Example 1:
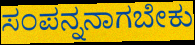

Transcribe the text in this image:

ಸಂಪನ್ನನಾಗಬೇಕು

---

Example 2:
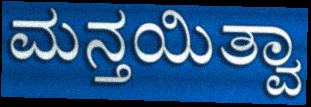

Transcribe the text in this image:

ಮನ್ತಯಿತ್ವಾ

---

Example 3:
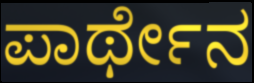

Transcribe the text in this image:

ಪಾರ್ಥೇನ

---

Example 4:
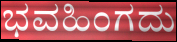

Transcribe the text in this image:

ಭವಹಿಂಗದು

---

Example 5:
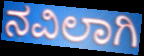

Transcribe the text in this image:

ನವಿಲಾಗಿ